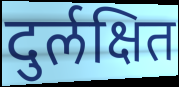
दुर्लक्षित